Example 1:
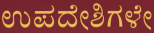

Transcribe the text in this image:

ಉಪದೇಶಿಗಳೇ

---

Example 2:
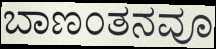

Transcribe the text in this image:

ಬಾಣಂತನವೂ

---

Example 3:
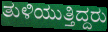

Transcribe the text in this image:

ತುಳಿಯುತ್ತಿದ್ದರು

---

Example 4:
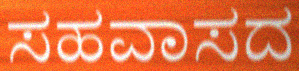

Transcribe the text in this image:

ಸಹವಾಸದ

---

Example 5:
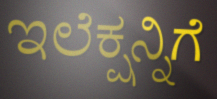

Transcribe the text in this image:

ಇಲೆಕ್ಷನ್ನಿಗೆ